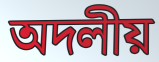
অদলীয়